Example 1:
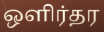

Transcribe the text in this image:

ஒளிர்தர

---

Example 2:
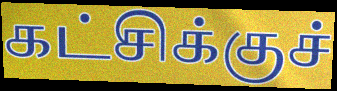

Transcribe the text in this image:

கட்சிக்குச்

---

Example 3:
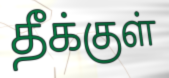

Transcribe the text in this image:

தீக்குள்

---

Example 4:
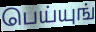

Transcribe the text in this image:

பெய்யுங்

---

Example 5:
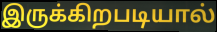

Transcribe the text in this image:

இருக்கிறபடியால்